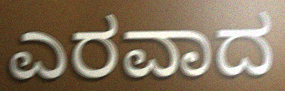
ಎರವಾದ